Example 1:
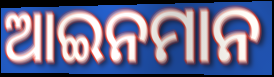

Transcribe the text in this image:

ଆଇନମାନ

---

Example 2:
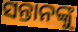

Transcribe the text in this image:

ସନ୍ତାନଙ୍କୁ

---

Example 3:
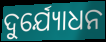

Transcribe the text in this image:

ଦୁର୍ଯ୍ୟୋଧନ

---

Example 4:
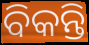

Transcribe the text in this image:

ବିକନ୍ତି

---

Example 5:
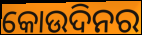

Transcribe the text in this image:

କୋଉଦିନର